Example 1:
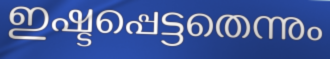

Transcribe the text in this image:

ഇഷ്ടപ്പെട്ടതെന്നും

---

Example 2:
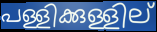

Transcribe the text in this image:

പള്ളിക്കുള്ളില്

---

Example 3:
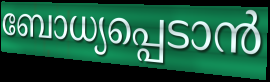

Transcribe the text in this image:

ബോധ്യപ്പെടാൻ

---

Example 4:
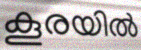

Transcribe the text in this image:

കൂരയിൽ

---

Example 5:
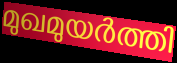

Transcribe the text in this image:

മുഖമുയർത്തി